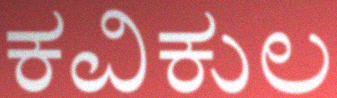
ಕವಿಕುಲ